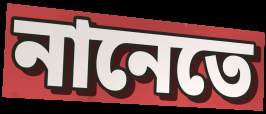
নানেতে